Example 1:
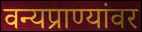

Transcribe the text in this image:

वन्यप्राण्यांवर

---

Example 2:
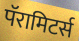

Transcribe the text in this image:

पॅरामिटर्स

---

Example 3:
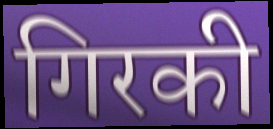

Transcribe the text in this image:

गिरकी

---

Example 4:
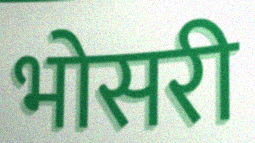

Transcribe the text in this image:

भोसरी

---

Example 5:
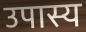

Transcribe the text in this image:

उपास्य